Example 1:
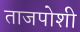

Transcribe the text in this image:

ताजपोशी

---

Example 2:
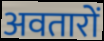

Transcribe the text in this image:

अवतारों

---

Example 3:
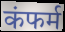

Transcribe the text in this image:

कंफर्म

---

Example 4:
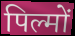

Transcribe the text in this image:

पिल्मों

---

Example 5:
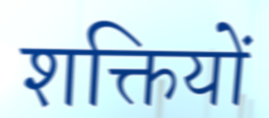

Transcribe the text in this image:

शक्तियों